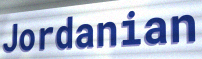
Jordanian